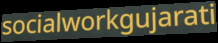
socialworkgujarati